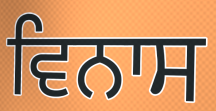
ਵਿਨਾਸ